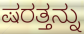
ಷರತ್ತನ್ನು